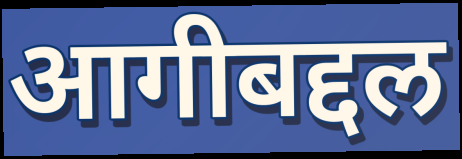
आगीबद्दल